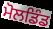
ਮੋਲਡਿੰਡ